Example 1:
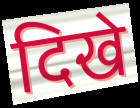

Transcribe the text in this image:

दिखे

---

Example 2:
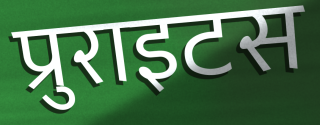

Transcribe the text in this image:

प्रुराइटस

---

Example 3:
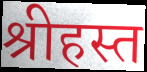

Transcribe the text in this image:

श्रीहस्त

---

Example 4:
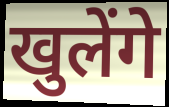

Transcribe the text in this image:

खुलेंगे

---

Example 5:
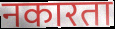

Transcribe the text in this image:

नकारता